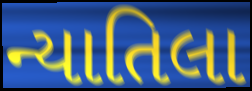
ન્યાતિલા